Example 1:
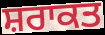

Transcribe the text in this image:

ਸ਼ਰਾਕਤ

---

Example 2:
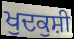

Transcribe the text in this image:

ਖੁਦਕੁਸ਼ੀ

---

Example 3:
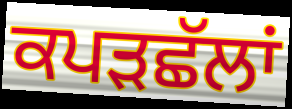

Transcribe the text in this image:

ਕਪੜਛੱਲਾਂ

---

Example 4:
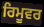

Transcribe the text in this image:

ਰਿਮੂਵਰ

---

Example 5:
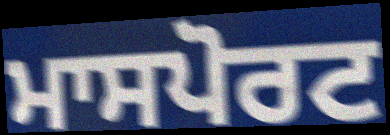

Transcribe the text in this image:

ਮਾਸਪੋਰਟ